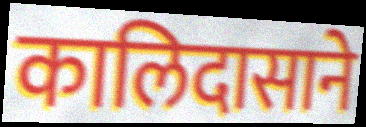
कालिदासाने